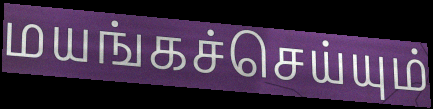
மயங்கச்செய்யும்